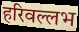
हरिवल्लभ